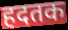
हदतक